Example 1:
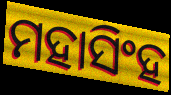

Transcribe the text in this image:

ମହାସିଂହ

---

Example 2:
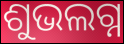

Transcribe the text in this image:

ଶୁଭଲଗ୍ନ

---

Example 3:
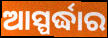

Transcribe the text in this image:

ଆସ୍ପର୍ଦ୍ଧାର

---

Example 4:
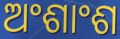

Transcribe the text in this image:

ଅଂଶାଂଶ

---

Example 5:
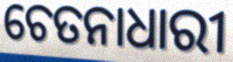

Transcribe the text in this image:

ଚେତନାଧାରୀ